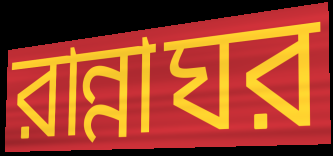
রান্নাঘর